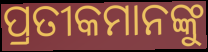
ପ୍ରତୀକମାନଙ୍କୁ